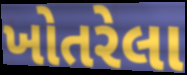
ખોતરેલા